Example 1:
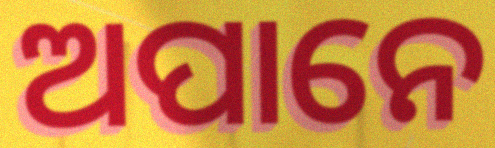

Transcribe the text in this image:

ଅପାନେ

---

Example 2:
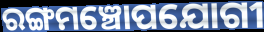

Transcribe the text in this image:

ରଙ୍ଗମଞ୍ଚୋପଯୋଗୀ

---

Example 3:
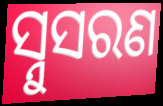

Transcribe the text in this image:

ସ୍ନୁସରଣ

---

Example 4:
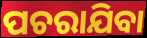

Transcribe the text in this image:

ପଚରାଯିବା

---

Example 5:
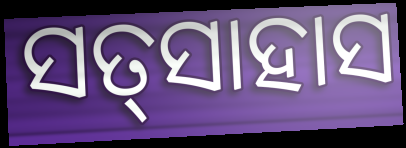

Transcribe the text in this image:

ସତ୍‌ସାହାସ